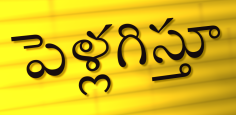
పెళ్లగిస్తూ